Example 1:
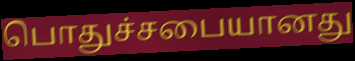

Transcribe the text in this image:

பொதுச்சபையானது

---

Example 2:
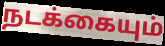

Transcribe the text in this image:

நடக்கையும்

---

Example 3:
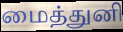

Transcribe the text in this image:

மைத்துனி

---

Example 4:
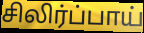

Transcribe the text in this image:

சிலிர்ப்பாய்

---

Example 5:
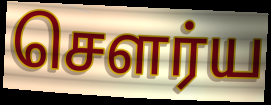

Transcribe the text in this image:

சௌர்ய